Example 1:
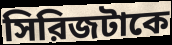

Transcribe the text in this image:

সিরিজটাকে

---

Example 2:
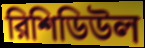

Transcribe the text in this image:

রিশিডিউল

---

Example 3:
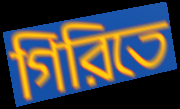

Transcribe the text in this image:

গিরিতে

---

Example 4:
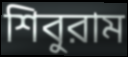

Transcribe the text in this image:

শিবুরাম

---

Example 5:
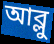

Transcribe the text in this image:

আব্লু